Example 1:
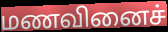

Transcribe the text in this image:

மணவினைச்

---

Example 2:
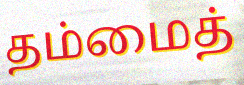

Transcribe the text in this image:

தம்மைத்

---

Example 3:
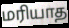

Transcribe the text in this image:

மரியாத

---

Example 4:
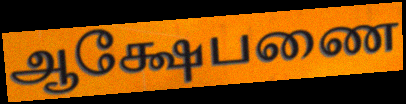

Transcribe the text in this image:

ஆக்ஷேபணை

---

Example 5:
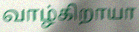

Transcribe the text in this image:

வாழ்கிறாயா